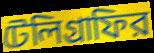
টেলিগ্রাফির